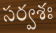
సర్వశః